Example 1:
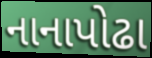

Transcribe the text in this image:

નાનાપોઢા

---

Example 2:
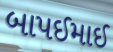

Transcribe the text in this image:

બાપઈમાઈ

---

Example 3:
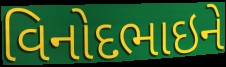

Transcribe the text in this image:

વિનોદભાઇને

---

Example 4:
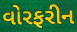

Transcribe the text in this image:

વોરફરીન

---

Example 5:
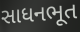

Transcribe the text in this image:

સાધનભૂત